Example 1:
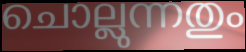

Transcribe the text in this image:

ചൊല്ലുന്നതും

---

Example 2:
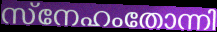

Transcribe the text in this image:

സ്‌നേഹംതോന്നി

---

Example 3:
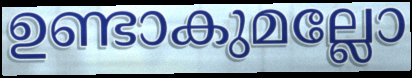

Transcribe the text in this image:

ഉണ്ടാകുമല്ലോ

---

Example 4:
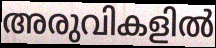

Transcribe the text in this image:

അരുവികളിൽ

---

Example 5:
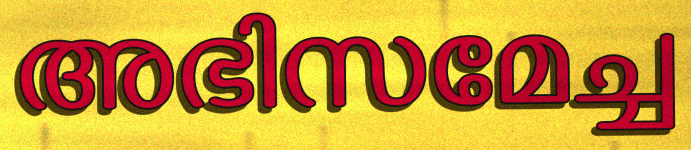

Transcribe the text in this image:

അഭിസമേച്ച